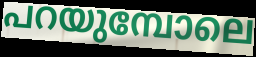
പറയുമ്പോലെ